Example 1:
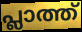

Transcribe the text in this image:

പ്ലാത്ത്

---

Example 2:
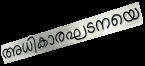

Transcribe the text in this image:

അധികാരഘടനയെ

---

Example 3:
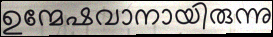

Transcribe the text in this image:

ഉന്മേഷവാനായിരുന്നു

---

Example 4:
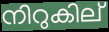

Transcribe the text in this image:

നിറുകില്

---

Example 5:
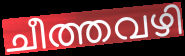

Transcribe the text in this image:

ചീത്തവഴി